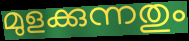
മുളക്കുന്നതും